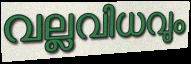
വല്ലവിധവും